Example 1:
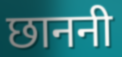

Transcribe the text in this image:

छाननी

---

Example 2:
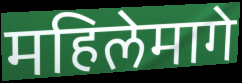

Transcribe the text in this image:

महिलेमागे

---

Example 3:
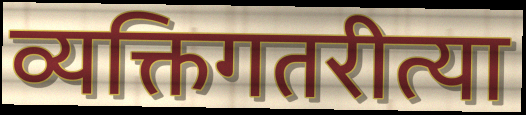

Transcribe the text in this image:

व्यक्तिगतरीत्या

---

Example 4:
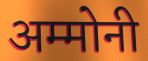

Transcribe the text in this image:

अम्मोनी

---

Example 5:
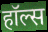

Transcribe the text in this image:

हॉल्स